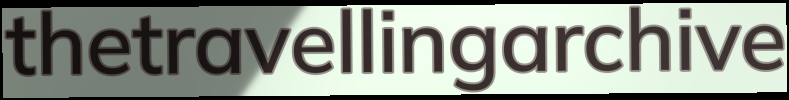
thetravellingarchive